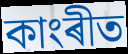
কাংৰীত